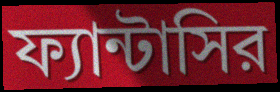
ফ্যান্টাসির